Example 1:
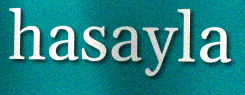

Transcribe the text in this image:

hasayla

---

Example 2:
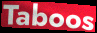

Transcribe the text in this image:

Taboos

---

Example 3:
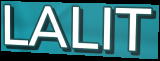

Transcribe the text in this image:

LALIT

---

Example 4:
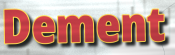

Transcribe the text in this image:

Dement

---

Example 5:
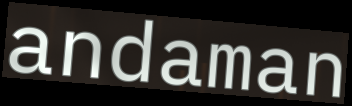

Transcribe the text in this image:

andaman